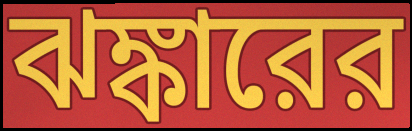
ঝঙ্কারের